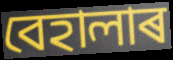
বেহালাৰ